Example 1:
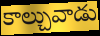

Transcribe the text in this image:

కాల్చువాడు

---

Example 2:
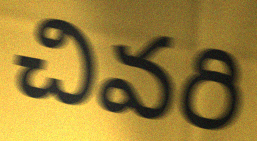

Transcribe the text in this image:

చివరి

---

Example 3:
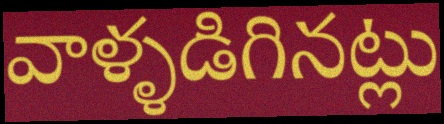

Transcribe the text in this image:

వాళ్ళడిగినట్లు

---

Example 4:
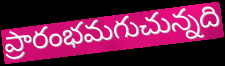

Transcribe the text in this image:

ప్రారంభమగుచున్నది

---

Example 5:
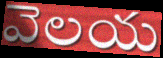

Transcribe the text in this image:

వెలయ